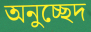
অনুচ্ছেদ